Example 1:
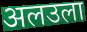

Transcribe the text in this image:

अलउला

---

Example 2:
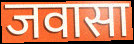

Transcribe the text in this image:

जवासा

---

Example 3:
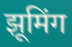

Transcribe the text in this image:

झूमिंग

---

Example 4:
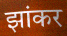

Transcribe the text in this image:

झांकर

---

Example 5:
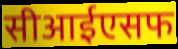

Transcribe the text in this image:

सीआईएसफ